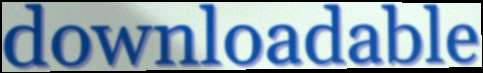
downloadable